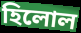
হিলোল